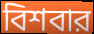
বিশবার